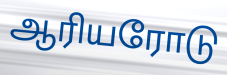
ஆரியரோடு